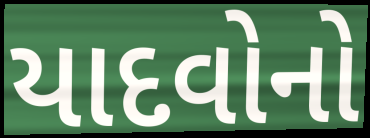
યાદવોનો